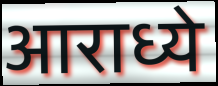
आराध्ये